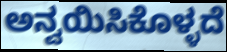
ಅನ್ವಯಿಸಿಕೊಳ್ಳದೆ